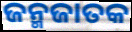
ଜନ୍ମଜାତକ